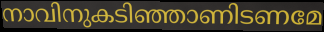
നാവിനുകടിഞ്ഞാണിടണമേ